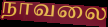
நாவலை